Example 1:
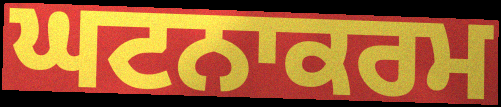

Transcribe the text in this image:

ਘਟਨਾਕਰਮ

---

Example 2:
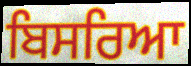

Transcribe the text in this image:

ਬਿਸਰਿਆ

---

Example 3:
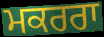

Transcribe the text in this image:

ਮਕਰਰਾ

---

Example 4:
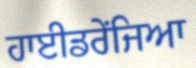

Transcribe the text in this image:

ਹਾਈਡਰੇਂਜਿਆ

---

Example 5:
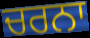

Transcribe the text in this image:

ਚਰਨਾ